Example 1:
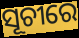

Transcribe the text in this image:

ସୂଚୀରେ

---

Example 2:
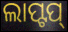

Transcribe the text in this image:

ଲାପ୍ଟପ୍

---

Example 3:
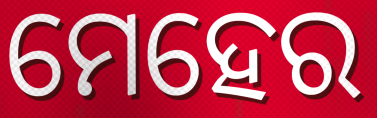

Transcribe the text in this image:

ମେହେର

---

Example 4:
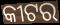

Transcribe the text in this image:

କୀଟର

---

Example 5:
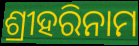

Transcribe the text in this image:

ଶ୍ରୀହରିନାମ